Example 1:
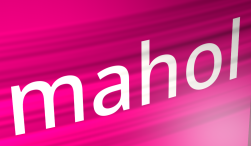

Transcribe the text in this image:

mahol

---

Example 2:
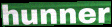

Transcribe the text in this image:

hunner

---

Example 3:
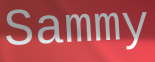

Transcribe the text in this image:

Sammy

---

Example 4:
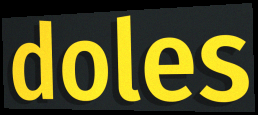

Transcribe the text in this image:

doles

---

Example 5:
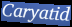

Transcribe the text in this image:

Caryatid